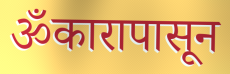
ॐकारापासून